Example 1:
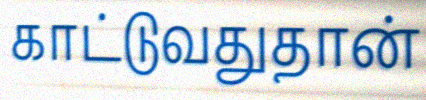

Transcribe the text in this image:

காட்டுவதுதான்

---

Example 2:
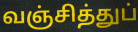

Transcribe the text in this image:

வஞ்சித்துப்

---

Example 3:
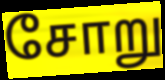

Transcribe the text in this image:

சோறு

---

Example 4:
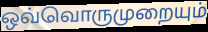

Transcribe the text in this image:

ஒவ்வொருமுறையும்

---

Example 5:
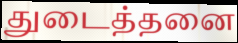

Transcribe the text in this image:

துடைத்தனை